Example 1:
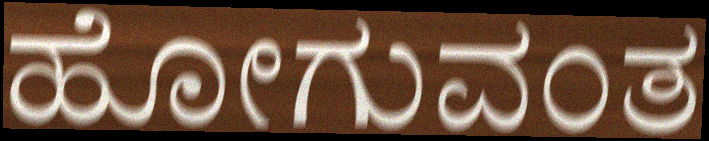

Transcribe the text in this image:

ಹೋಗುವಂತ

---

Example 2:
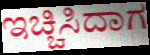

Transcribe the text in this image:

ಇಚ್ಚಿಸಿದಾಗ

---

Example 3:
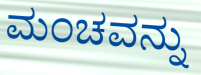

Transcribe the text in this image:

ಮಂಚವನ್ನು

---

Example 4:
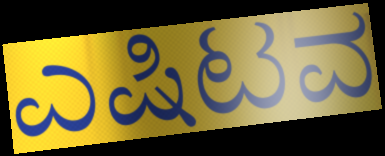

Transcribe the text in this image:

ಎಷಿಟವ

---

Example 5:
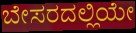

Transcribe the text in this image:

ಬೇಸರದಲ್ಲಿಯೇ